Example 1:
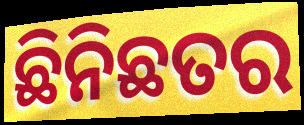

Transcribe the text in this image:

ଛିନିଛତର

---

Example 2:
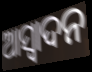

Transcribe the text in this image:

ଆସ୍ୱାଦନ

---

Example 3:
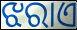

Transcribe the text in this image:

ଝରାଏ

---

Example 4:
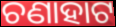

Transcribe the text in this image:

ଚଣାହାଟ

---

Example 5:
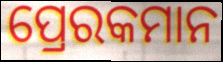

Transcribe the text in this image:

ପ୍ରେରକମାନ